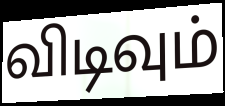
விடிவும்